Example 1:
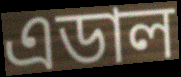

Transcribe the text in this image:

এডাল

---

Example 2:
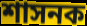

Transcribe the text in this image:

শাসনক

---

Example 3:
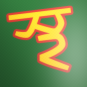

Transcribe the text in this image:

স্থ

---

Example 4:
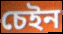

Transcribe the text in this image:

চেইন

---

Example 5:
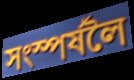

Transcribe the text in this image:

সংস্পৰ্ষলৈ